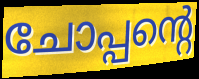
ചോപ്പന്റെ